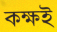
কক্ষই